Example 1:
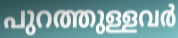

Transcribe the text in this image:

പുറത്തുള്ളവർ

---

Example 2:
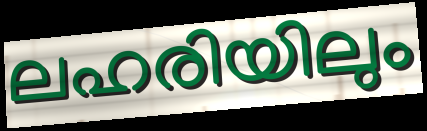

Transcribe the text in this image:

ലഹരിയിലും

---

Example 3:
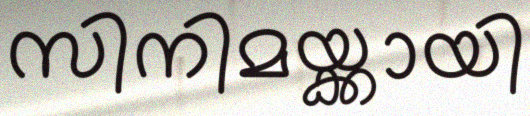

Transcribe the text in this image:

സിനിമയ്ക്കായി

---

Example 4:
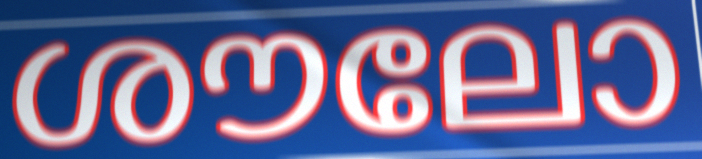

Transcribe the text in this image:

ശൗലോ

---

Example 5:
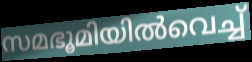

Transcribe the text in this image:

സമഭൂമിയിൽവെച്ച്